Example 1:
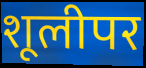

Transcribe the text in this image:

शूलीपर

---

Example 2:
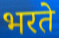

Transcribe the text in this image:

भरते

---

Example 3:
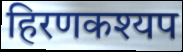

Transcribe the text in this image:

हिरणकश्यप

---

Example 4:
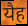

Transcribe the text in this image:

यैह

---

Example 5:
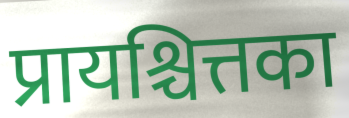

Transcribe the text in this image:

प्रायश्चित्तका